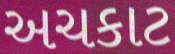
અચકાટ